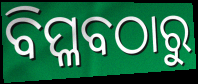
ବିପ୍ଳବଠାରୁ